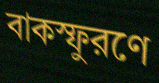
বাকস্ফুরণে